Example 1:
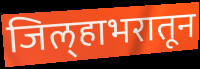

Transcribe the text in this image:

जिल्हाभरातून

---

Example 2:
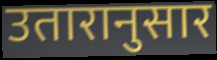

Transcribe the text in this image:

उतारानुसार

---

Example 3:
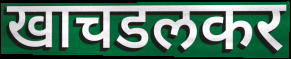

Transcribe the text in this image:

खाचडलकर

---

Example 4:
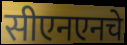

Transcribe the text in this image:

सीएनएनचे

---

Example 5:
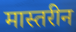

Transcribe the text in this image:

मास्तरीन